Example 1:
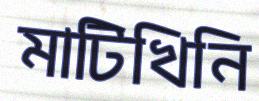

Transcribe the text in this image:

মাটিখিনি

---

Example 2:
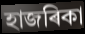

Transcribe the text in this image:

হাজৰিকা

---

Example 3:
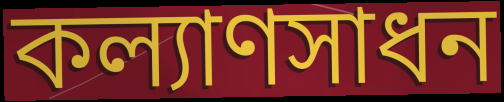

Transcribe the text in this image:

কল্যাণসাধন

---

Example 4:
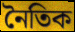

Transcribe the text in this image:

নৈতিক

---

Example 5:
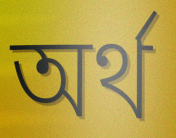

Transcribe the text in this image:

অৰ্থ